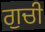
ਗੁਚੀ